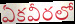
ఏకవీరలో